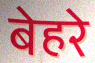
बेहरे